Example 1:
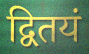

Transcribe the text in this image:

द्वितयं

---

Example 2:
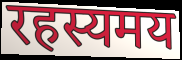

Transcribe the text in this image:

रहस्यमय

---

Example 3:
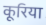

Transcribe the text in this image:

कूरिया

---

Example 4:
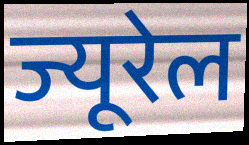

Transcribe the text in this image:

ज्यूरेल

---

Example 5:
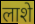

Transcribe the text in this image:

लाशे